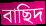
বাছিদ